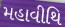
મહાવીથિ